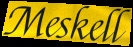
Meskell